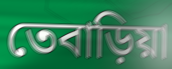
তেবাড়িয়া